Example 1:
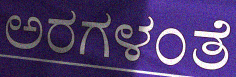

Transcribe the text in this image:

ಅರಗಳಂತೆ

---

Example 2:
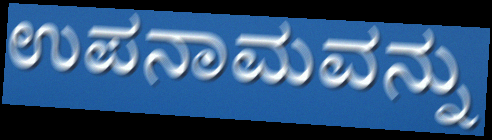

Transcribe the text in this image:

ಉಪನಾಮವನ್ನು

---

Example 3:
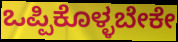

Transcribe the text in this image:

ಒಪ್ಪಿಕೊಳ್ಳಬೇಕೇ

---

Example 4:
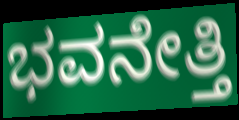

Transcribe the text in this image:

ಭವನೇತ್ತಿ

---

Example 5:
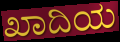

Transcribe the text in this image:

ಖಾದಿಯ